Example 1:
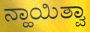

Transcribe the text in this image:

ನ್ಹಾಯಿತ್ವಾ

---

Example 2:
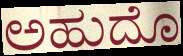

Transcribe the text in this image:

ಅಹುದೊ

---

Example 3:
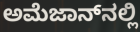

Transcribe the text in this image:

ಅಮೆಜಾನ್‌ನಲ್ಲಿ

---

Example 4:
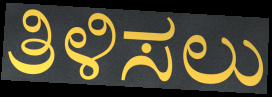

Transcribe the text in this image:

ತಿಳಿಸಲು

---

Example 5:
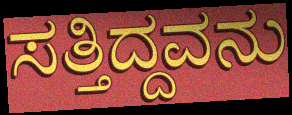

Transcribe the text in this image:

ಸತ್ತಿದ್ದವನು